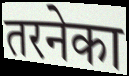
तरनेका